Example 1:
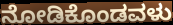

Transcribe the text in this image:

ನೋಡಿಕೊಂಡವಳು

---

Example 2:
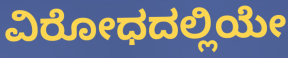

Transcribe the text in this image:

ವಿರೋಧದಲ್ಲಿಯೇ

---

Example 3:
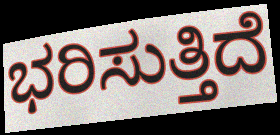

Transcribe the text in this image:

ಭರಿಸುತ್ತಿದೆ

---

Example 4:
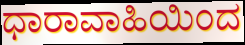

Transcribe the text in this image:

ಧಾರಾವಾಹಿಯಿಂದ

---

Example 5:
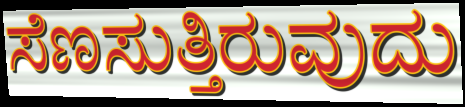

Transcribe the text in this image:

ಸೆಣಸುತ್ತಿರುವುದು